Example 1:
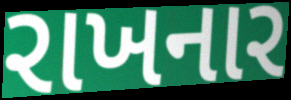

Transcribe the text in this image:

રાખનાર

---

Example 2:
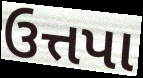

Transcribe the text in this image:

ઉત્તપા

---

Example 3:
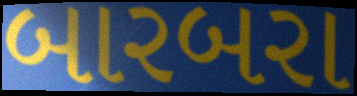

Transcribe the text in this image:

બારબરા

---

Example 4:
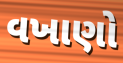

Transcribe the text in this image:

વખાણો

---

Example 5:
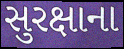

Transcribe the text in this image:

સુરક્ષાના